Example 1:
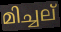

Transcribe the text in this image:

മിച്ചല്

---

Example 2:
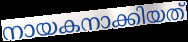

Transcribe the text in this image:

നായകനാക്കിയത്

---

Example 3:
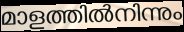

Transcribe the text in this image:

മാളത്തിൽനിന്നും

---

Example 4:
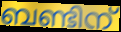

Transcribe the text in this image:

ബണ്ടിന്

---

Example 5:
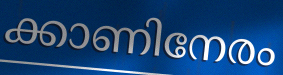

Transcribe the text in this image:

ക്കാണിനേരം